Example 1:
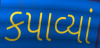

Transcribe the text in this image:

કપાવ્યાં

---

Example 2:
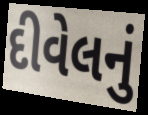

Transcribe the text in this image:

દીવેલનું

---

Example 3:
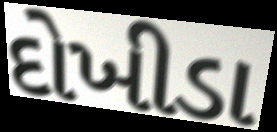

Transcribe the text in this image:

દોખીડા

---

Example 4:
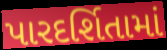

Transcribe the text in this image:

પારદર્શિતામાં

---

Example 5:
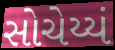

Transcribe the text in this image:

સોચેય્યં